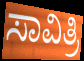
ಸಾವಿತ್ರಿ